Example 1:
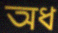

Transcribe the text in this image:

অধ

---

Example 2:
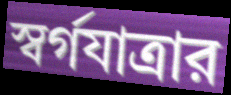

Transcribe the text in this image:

স্বর্গযাত্রার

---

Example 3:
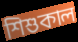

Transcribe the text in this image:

শিশুকাল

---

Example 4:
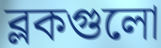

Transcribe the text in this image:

ব্লকগুলো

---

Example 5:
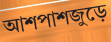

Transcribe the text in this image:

আশপাশজুড়ে